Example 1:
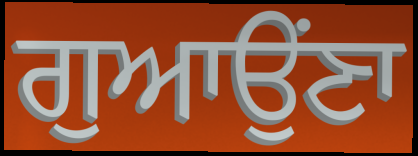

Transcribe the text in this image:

ਗੁਆਉਂਣਾ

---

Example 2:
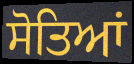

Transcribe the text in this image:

ਸੋਤਿਆਂ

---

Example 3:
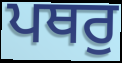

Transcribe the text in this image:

ਪਥਰੁ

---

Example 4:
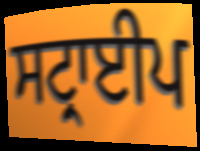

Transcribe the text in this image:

ਸਟ੍ਰਾਈਪ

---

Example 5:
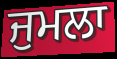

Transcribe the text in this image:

ਜੁਮਲਾ